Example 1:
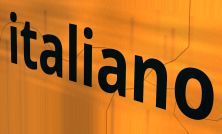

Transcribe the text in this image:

italiano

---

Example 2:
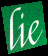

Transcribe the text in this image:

lie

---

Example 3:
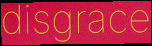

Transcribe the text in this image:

disgrace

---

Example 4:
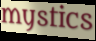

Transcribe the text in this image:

mystics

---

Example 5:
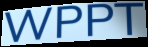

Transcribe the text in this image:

WPPT